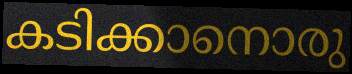
കടിക്കാനൊരു